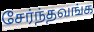
சேர்ந்தவங்க